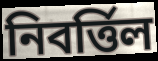
নিবর্ত্তিল